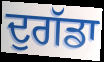
ਦੁਗੱਡਾ